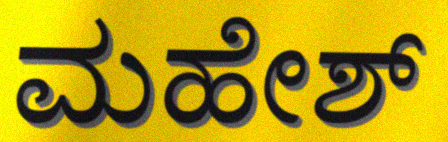
ಮಹೇಶ್